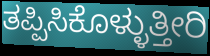
ತಪ್ಪಿಸಿಕೊಳ್ಳುತ್ತೀರಿ